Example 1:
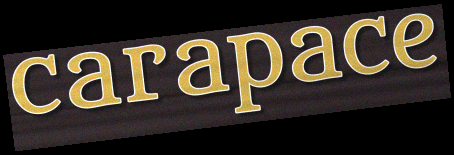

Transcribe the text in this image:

carapace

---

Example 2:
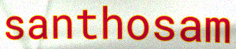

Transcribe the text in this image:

santhosam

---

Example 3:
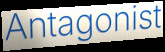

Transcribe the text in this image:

Antagonist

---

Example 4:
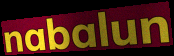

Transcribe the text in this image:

nabalun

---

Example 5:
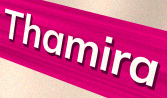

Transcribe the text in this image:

Thamira